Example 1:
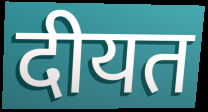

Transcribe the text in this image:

दीयत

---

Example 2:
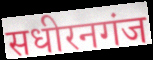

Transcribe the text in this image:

सधीरनगंज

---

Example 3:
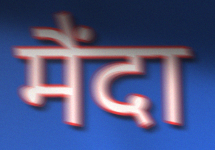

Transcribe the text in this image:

मैंदा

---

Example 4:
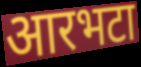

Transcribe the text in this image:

आरभटा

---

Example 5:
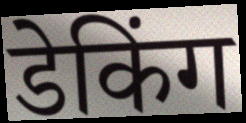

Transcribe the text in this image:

डेकिंग